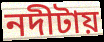
নদীটায়